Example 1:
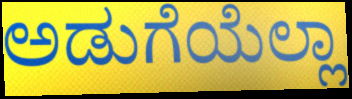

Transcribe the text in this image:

ಅಡುಗೆಯೆಲ್ಲಾ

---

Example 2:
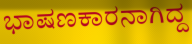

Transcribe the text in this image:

ಭಾಷಣಕಾರನಾಗಿದ್ದ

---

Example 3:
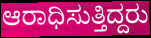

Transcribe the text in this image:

ಆರಾಧಿಸುತ್ತಿದ್ದರು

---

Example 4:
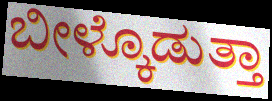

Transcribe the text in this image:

ಬೀಳ್ಕೊಡುತ್ತಾ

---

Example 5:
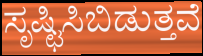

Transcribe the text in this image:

ಸೃಷ್ಟಿಸಿಬಿಡುತ್ತವೆ